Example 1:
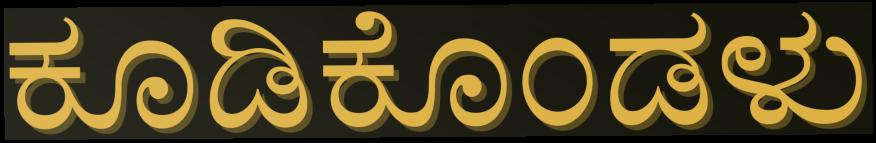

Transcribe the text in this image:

ಕೂಡಿಕೊಂಡಳು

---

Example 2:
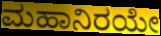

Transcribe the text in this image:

ಮಹಾನಿರಯೇ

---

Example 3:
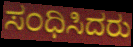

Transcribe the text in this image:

ಸಂಧಿಸಿದರು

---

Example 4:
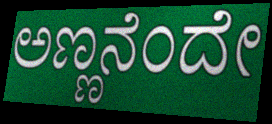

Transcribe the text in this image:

ಅಣ್ಣನೆಂದೇ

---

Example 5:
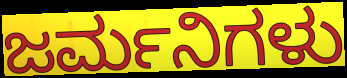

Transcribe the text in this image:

ಜರ್ಮನಿಗಳು